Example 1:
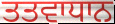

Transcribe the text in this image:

ਤਤਵਾਧਾਨ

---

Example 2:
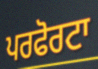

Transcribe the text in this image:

ਪਰਫੋਰਟਾ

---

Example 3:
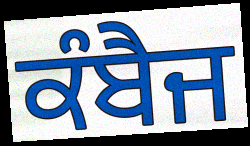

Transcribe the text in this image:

ਕੰਬੈਜ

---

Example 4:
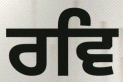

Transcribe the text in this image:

ਰਵਿ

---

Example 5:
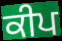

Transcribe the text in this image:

ਕੀਪ